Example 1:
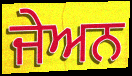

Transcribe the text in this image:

ਜੇਅਨ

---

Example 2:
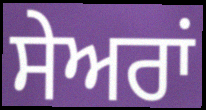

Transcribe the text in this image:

ਸੇਅਰਾਂ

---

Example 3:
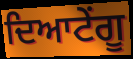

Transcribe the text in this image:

ਦਿਆਟੇਂਗੂ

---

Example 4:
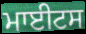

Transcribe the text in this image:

ਮਾਈਟਸ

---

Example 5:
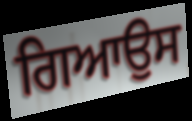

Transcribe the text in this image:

ਗਿਆਉਸ